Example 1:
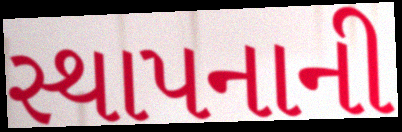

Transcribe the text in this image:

સ્થાપનાની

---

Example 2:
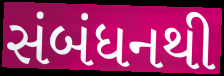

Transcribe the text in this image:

સંબંધનથી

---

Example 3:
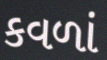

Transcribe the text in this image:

કવળાં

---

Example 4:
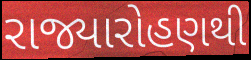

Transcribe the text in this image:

રાજ્યારોહણથી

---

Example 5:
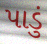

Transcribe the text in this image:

પાડું